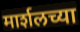
मार्शलच्या